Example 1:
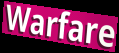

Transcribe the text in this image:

Warfare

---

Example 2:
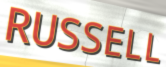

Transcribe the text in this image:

RUSSELL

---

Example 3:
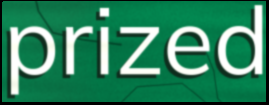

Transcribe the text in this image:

prized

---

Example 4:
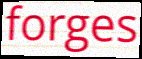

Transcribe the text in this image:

forges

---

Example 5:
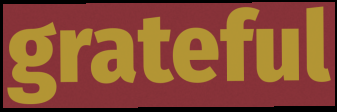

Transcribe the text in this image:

grateful